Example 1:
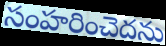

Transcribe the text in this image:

సంహరించెదను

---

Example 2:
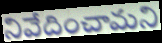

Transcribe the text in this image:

నివేదించామని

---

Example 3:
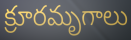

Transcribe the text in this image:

క్రూరమృగాలు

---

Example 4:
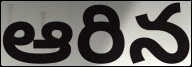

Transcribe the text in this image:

ఆరిన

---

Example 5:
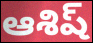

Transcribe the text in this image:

ఆశిష్